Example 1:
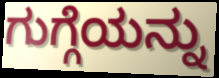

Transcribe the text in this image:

ಗುಗ್ಗೆಯನ್ನು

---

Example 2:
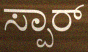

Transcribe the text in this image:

ಸ್ಪಾರ್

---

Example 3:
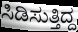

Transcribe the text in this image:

ಸಿಡಿಸುತ್ತಿದ್ದ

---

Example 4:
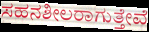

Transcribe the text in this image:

ಸಹನಶೀಲರಾಗುತ್ತೇವೆ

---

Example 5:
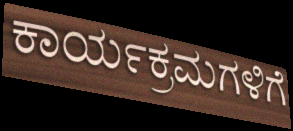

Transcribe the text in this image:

ಕಾರ್ಯಕ್ರಮಗಳಿಗೆ